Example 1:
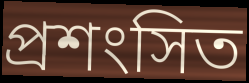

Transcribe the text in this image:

প্ৰশংসিত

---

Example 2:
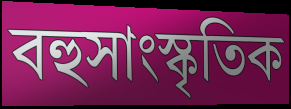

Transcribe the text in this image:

বহুসাংস্কৃতিক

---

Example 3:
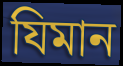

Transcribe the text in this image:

যিমান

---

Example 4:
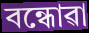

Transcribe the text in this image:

বন্ধোৱা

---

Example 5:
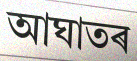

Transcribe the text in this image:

আঘাতৰ